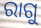
ରାଗୁ